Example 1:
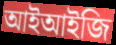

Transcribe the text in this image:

আইআইজি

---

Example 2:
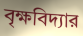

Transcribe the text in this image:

বৃক্ষবিদ্যার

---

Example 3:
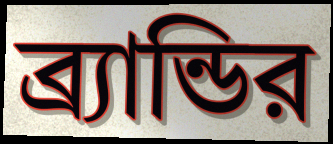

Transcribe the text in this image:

ব্র্যান্ডির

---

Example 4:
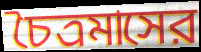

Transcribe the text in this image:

চৈত্রমাসের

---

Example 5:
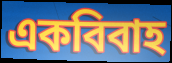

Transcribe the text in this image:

একবিবাহ